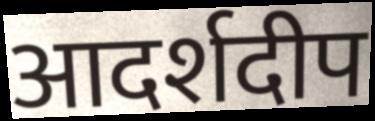
आदर्शदीप